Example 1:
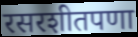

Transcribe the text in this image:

रसरशीतपणा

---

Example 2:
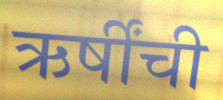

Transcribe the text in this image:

ऋर्षींची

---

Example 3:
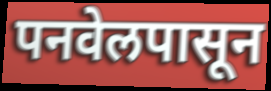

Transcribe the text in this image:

पनवेलपासून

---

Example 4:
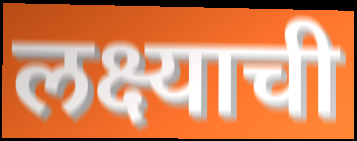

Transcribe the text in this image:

लक्ष्याची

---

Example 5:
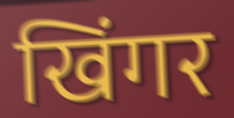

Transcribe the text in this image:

खिंगर